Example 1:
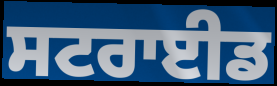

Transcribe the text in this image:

ਸਟਰਾਈਡ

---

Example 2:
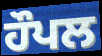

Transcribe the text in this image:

ਹੌਪਲ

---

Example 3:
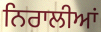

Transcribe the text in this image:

ਨਿਰਾਲੀਆਂ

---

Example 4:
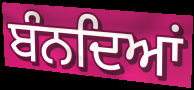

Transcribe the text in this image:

ਬੰਨਦਿਆਂ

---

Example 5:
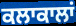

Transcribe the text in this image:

ਕਲਾਕਾਲਾਂ